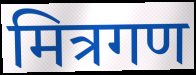
मित्रगण